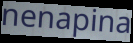
nenapina